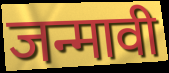
जन्मावी